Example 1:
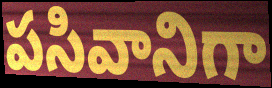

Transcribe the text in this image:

పసివానిగా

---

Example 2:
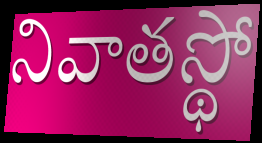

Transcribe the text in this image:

నివాతస్థో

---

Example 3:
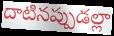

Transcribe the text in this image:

దాటినప్పుడల్లా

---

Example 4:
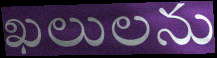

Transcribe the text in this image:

ఖలులను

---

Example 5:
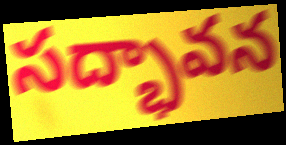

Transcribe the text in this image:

సద్భావన